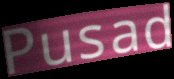
Pusad